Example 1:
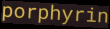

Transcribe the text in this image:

porphyrin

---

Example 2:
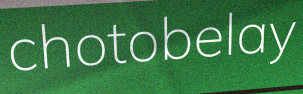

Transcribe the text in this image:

chotobelay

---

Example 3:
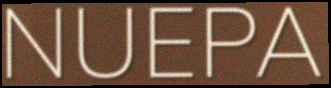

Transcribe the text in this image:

NUEPA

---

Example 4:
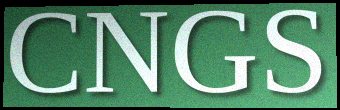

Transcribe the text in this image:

CNGS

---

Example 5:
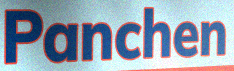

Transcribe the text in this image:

Panchen